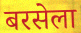
बरसेला